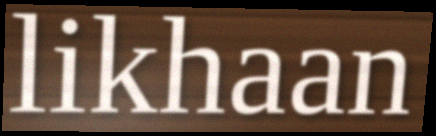
likhaan